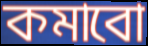
কমাবো